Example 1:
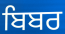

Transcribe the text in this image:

ਬਿਬਰ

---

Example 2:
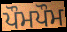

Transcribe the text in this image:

ਪੌਮਪੌਮ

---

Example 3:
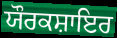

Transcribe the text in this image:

ਯੌਰਕਸ਼ਾਇਰ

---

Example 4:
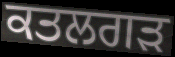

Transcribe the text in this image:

ਕਤਲਗੜ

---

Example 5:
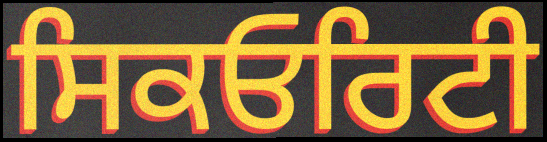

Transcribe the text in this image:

ਸਿਕਓਰਿਟੀ